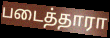
படைத்தாரா